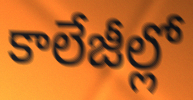
కాలేజీల్లో